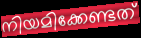
നിയമിക്കേണ്ടത്